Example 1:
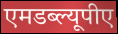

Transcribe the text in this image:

एमडब्ल्यूपीए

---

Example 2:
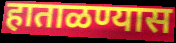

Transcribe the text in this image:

हाताळण्यास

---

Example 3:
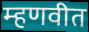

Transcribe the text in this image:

म्हणवीत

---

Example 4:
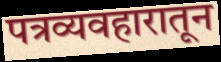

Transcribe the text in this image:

पत्रव्यवहारातून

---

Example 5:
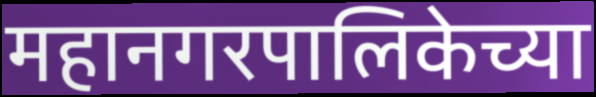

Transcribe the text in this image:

महानगरपालिकेच्या